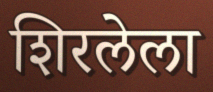
शिरलेला